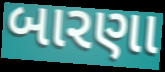
બારણા